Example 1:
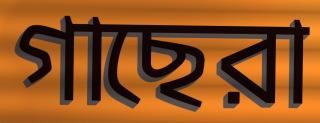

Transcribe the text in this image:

গাছেরা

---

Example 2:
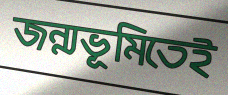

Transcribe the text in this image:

জন্মভূমিতেই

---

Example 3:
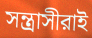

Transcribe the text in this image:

সন্ত্রাসীরাই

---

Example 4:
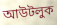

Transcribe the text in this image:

আউটলুক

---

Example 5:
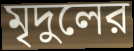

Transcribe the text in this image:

মৃদুলের